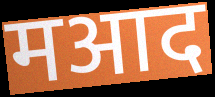
मआद